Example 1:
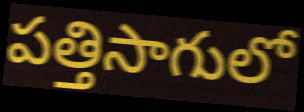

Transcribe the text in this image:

పత్తిసాగులో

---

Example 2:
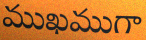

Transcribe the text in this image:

ముఖముగా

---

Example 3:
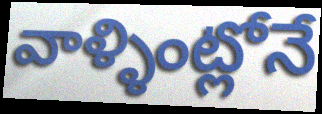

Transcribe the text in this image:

వాళ్ళింట్లోనే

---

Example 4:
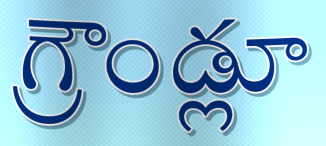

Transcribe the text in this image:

గ్రౌండ్లూ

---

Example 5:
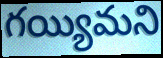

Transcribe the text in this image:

గయ్యిమని